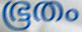
ഭൂതം